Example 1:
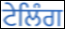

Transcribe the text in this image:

ਟੇਲਿੰਗ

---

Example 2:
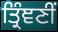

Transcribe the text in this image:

ਤ੍ਰਿੰਞਣੀਂ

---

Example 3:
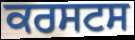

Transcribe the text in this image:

ਕਰਸਟਸ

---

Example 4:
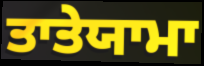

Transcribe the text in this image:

ਤਾਤੇਯਾਮਾ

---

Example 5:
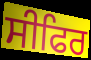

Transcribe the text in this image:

ਸੀਫਿਰ